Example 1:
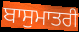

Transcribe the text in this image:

ਬਾਸੁਮਾਤਰੀ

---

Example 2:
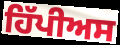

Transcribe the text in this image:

ਹਿੱਪੀਅਸ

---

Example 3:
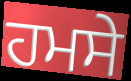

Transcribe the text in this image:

ਹਮਸੇ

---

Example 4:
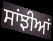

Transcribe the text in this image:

ਸਾਂਝੀਆਂ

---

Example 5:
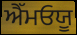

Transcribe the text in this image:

ਐੱਮਓਯੂ